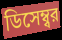
ডিসেম্ব্বর